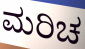
ಮರಿಚ